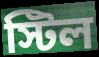
স্টিল